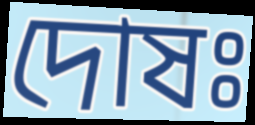
দোষঃ